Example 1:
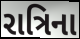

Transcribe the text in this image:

રાત્રિના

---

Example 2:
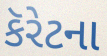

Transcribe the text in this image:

કૅરેટના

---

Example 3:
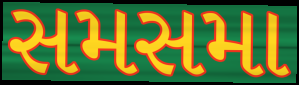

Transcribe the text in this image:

સમસમા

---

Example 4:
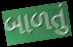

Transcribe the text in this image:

બાળતું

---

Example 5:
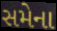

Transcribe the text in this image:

સમેના